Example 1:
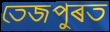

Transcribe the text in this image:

তেজপুৰত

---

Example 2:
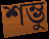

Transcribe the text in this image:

শম্ভু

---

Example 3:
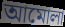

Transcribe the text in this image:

আমোলা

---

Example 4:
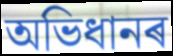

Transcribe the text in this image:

অভিধানৰ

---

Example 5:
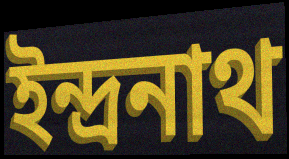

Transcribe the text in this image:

ইন্দ্ৰনাথ